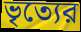
ভৃত্যের